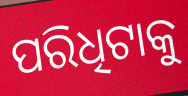
ପରିଧିଟାକୁ